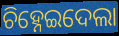
ଚିହ୍ନେଇଦେଲା